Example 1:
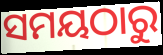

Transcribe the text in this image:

ସମୟଠାରୁ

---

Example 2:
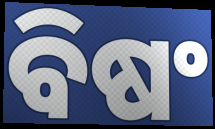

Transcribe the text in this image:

ବିଷଂ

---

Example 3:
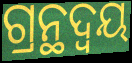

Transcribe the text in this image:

ଗ୍ରନ୍ଥଦ୍ଵୟ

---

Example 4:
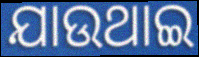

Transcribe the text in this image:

ଯାଉଥାଇ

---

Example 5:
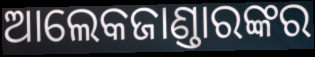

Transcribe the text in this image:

ଆଲେକଜାଣ୍ଡାରଙ୍କର